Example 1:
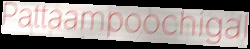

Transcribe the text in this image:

Pattaampoochigal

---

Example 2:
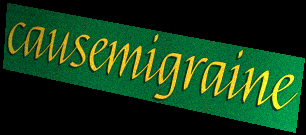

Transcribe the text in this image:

causemigraine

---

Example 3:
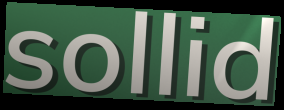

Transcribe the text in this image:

sollid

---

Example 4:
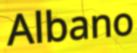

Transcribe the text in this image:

Albano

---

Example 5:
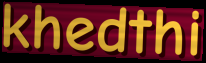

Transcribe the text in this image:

khedthi